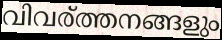
വിവര്ത്തനങ്ങളും